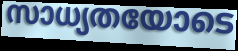
സാധ്യതയോടെ